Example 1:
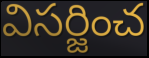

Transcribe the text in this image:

విసర్జించ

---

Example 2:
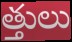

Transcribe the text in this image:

త్తులు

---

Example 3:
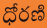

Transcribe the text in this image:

ధోరణి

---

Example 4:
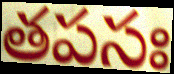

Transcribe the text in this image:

తపసః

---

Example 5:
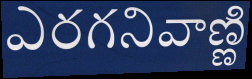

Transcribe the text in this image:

ఎరగనివాణ్ణి